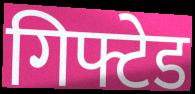
गिफ्टेड